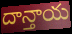
దాన్తాయ